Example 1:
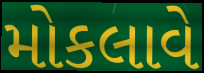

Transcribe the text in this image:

મોકલાવે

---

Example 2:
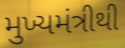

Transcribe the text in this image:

મુખ્યમંત્રીથી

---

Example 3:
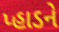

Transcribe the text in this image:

પ્હાડને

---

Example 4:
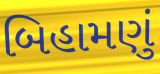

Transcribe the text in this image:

બિહામણું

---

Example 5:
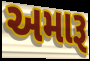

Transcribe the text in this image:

અમારૂ